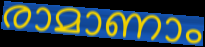
രാമാണാം